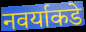
नवर्याकडे